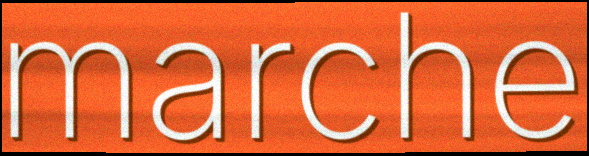
marche